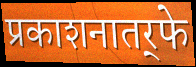
प्रकाशनातर्फे